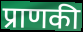
प्राणकी